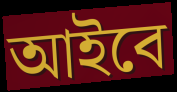
আইবে